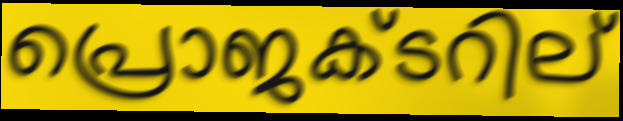
പ്രൊജക്ടറില്